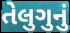
તેલુગુનું